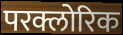
परक्लोरिक